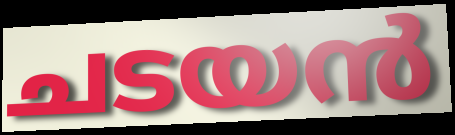
ചടയൻ